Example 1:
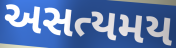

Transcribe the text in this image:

અસત્યમય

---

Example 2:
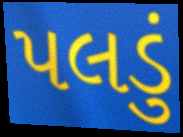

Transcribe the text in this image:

પલડું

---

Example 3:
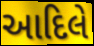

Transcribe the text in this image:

આદિલે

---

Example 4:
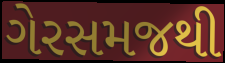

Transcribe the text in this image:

ગેરસમજથી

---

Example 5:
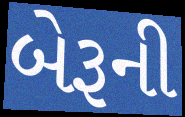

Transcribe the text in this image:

બેરૂની